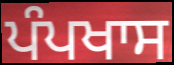
ਪੰਪਖਾਸ